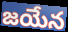
జయేన